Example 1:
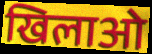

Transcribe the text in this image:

खिलाओ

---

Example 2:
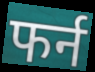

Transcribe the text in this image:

फर्न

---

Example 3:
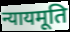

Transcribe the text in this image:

न्यायमूति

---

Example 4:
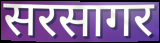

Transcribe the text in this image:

सरसागर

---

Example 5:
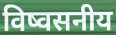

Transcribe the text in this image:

विष्वसनीय